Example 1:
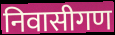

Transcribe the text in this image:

निवासीगण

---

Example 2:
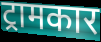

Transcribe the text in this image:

ट्रामकार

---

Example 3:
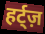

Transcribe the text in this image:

हर्ट्ज़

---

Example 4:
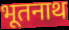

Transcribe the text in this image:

भूतनाथ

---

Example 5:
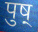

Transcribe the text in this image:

पुष्